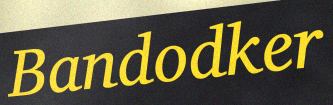
Bandodker